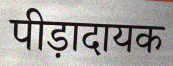
पीड़ादायक